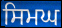
ਸਿਮਘ